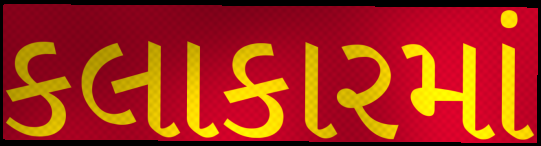
કલાકારમાં